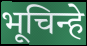
भूचिन्हे